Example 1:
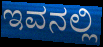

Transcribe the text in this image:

ಇವನಲ್ಲಿ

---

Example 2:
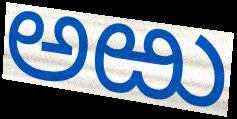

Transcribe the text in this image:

ಅಱು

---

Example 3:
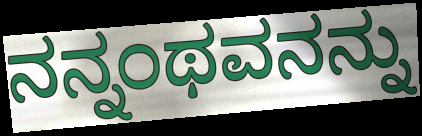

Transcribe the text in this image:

ನನ್ನಂಥವನನ್ನು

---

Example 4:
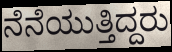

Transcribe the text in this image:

ನೆನೆಯುತ್ತಿದ್ದರು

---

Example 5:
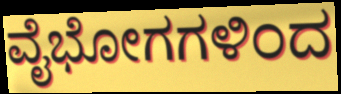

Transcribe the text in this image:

ವೈಭೋಗಗಳಿಂದ